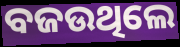
ବଜଉଥିଲେ